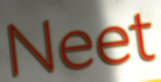
Neet